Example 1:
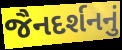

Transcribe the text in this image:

જૈનદર્શનનું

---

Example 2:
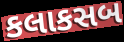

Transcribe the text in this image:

કલાકસબ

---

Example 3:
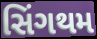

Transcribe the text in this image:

સિંગથમ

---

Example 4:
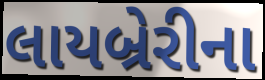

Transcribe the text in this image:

લાયબ્રેરીના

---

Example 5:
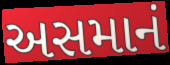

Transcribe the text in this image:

અસમાનં